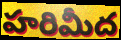
హరిమీద